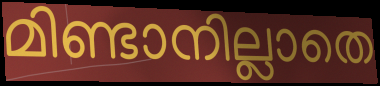
മിണ്ടാനില്ലാതെ